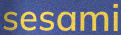
sesami